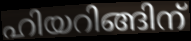
ഹിയറിങ്ങിന്